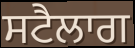
ਸਟੈਲਾਗ